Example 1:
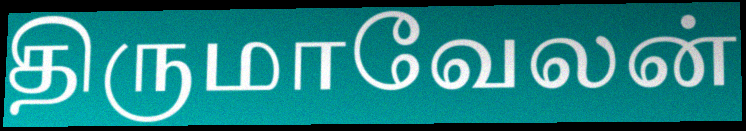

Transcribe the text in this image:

திருமாவேலன்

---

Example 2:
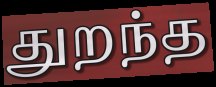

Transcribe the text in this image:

துறந்த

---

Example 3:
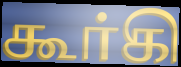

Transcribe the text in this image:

கூர்கி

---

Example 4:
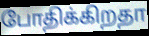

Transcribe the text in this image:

போதிக்கிறதா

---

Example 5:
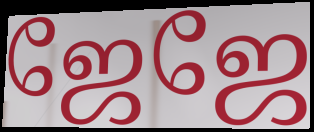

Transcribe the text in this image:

ஜேஜே